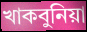
খাকবুনিয়া